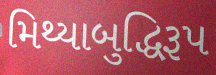
મિથ્યાબુદ્ધિરૂપ